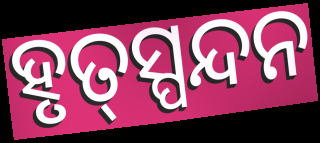
ହୃତ୍‍ସ୍ପନ୍ଦନ